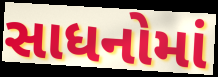
સાધનોમાં